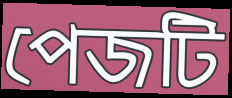
পেজটি